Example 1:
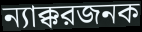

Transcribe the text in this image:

ন্যাক্করজনক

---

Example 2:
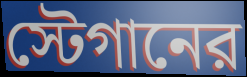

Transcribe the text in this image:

স্টেগানের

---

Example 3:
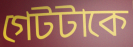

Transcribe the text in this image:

গেটটাকে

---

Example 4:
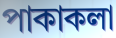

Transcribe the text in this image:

পাকাকলা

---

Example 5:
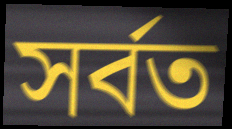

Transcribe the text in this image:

সর্বত